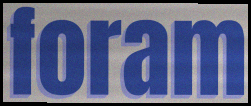
foram